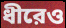
ধীরেও